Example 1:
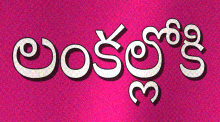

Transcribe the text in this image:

లంకల్లోకి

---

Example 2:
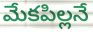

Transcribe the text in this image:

మేకపిల్లనే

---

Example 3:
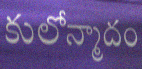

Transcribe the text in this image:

కులోన్మాదం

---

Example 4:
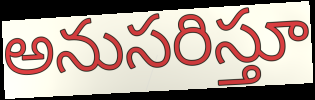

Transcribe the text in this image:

అనుసరిస్తూ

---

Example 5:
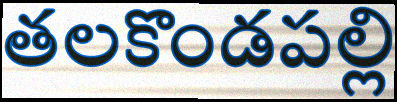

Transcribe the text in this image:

తలకొండపల్లి